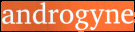
androgyne